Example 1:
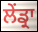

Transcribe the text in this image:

ਲੇਂਡ੍ਰਾ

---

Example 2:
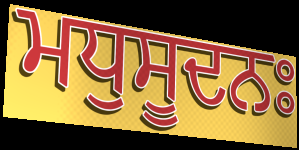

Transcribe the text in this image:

ਮਧੁਸੂਦਨਃ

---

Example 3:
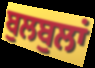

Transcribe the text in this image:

ਬੁਲਬੁਲਾਂ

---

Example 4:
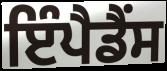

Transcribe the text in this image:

ਇੰਪੈਡੈਂਸ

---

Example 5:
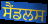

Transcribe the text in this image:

ਸੈਂਡਲਸ